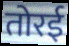
तोरई